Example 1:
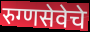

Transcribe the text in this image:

रुग्णसेवेचे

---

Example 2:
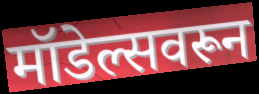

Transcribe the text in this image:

मॉडेल्सवरून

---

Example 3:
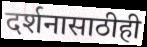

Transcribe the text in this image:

दर्शनासाठीही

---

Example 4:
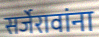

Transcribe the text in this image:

सर्जेरावांना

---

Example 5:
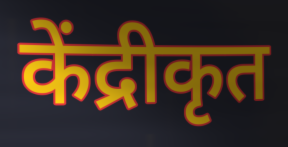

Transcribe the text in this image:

केंद्रीकृत